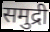
समुद्री